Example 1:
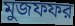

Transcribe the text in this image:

মুজফফর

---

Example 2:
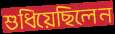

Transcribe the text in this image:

শুধিয়েছিলেন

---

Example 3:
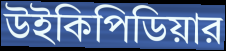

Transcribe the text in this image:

উইকিপিডিয়ার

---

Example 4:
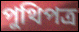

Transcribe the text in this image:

পুথিপত্র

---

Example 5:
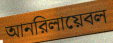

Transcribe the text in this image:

আনরিলায়েবল